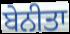
ਬੇਨੀਤਾ